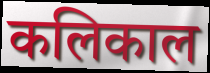
कलिकाल